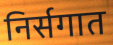
निर्सगात